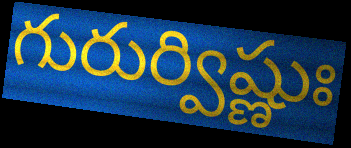
గురుర్విష్ణుః